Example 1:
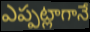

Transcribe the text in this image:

ఎప్పట్లాగానే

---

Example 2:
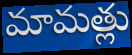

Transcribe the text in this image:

మామత్లు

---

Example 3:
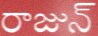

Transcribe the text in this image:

రాజున్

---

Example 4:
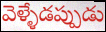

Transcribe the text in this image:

వెళ్ళేడప్పుడు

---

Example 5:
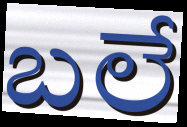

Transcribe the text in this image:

బలే